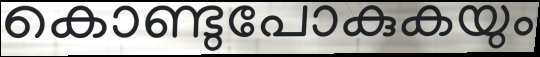
കൊണ്ടുപോകുകയും